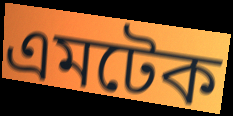
এমটেক